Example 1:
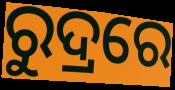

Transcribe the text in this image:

ରୁଦ୍ରରେ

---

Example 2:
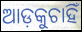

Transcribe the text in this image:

ଆଡ଼କୁଚାହିଁ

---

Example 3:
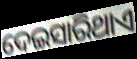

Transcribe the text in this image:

ଦେଇସାରିଥାଏ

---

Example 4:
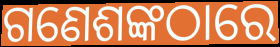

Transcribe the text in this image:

ଗଣେଶଙ୍କଠାରେ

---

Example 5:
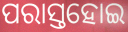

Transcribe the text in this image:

ପରାସ୍ତହୋଇ